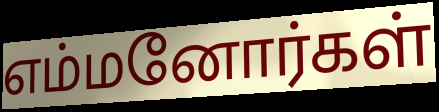
எம்மனோர்கள்